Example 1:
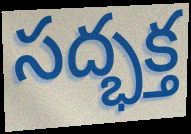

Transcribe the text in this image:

సద్భక్త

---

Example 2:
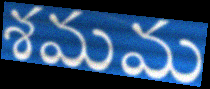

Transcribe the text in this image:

శమమ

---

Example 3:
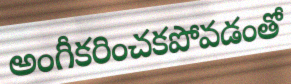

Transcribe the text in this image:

అంగీకరించకపోవడంతో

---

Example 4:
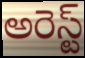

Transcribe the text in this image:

అరెస్ట్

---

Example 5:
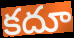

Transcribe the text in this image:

కదూ